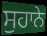
ਸੁਹਾਨੇ